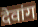
देवांग